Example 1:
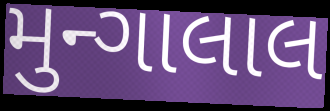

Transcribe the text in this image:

મુન્ગાલાલ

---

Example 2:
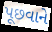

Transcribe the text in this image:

પૂછવાને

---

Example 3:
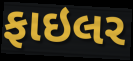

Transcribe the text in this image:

ફાઇલર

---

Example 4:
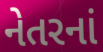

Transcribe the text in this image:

નેતરનાં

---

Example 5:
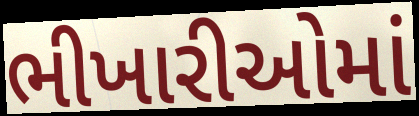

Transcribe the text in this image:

ભીખારીઓમાં